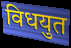
विधयुत